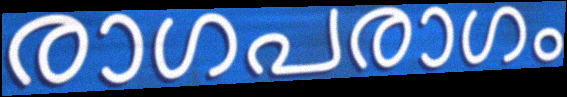
രാഗപരാഗം